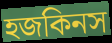
হজকিনস